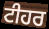
ਟੀਹਰ